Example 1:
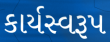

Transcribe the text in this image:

કાર્યસ્વરૂપ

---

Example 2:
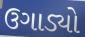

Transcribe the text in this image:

ઉગાડ્યો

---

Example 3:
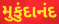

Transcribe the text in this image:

મુકુંદાનંદ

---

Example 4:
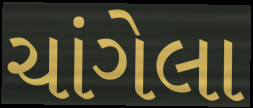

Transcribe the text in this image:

ચાંગેલા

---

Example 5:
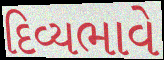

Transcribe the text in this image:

દિવ્યભાવે